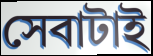
সেবাটাই